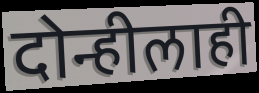
दोन्हीलाही